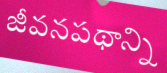
జీవనపథాన్ని